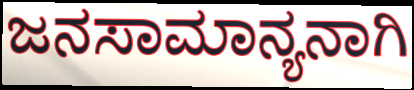
ಜನಸಾಮಾನ್ಯನಾಗಿ